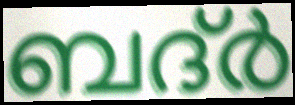
ബദ്ർ